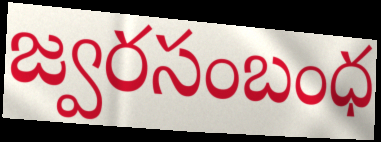
జ్వరసంబంధ